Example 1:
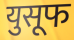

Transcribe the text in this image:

युसूफ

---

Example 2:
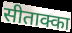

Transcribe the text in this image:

सीताक्का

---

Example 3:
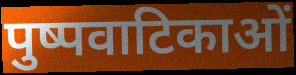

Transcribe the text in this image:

पुष्पवाटिकाओं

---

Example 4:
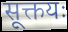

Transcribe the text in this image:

सूक्तयः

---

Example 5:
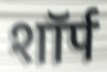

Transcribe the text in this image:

शॉर्प